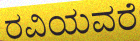
ರವಿಯವರೆ